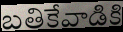
బతికేవాడికి